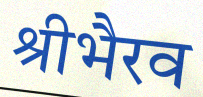
श्रीभैरव